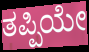
ತಪ್ಪಿಯೇ